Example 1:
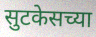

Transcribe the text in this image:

सुटकेसच्या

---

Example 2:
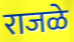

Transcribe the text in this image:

राजळे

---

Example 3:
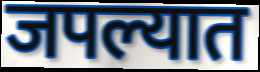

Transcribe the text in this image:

जपल्यात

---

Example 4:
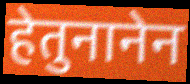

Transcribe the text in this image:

हेतुनानेन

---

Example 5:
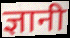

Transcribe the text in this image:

ज्ञानी